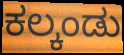
ಕಲ್ಕಂಡು